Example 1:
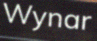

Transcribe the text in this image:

Wynar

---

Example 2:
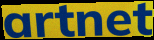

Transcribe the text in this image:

artnet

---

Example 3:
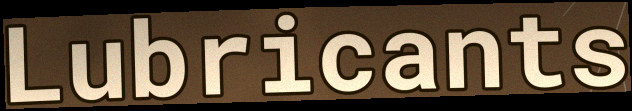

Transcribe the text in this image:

Lubricants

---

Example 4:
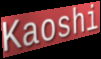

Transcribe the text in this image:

Kaoshi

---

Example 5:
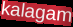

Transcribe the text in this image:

kalagam